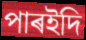
পাৰইদি